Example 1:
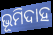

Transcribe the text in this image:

ଭୂମିଦାହ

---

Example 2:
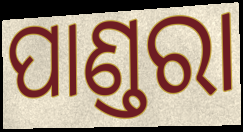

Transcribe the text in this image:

ପାଣ୍ଡରା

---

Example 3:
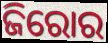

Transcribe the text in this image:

ଜିରୋର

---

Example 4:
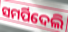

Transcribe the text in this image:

ସମର୍ପିଦେଲି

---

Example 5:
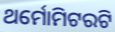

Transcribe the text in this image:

ଥର୍ମୋମିଟରଟି